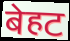
बेहट